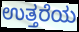
ಉತ್ತರೆಯ